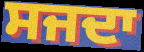
ਸਜਦਾ